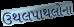
ઉથલપાથલોના